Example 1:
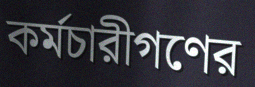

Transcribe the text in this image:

কর্মচারীগণের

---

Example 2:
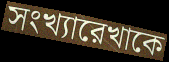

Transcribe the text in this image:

সংখ্যারেখাকে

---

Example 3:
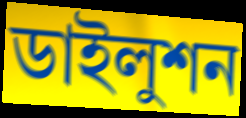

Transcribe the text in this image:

ডাইলুশন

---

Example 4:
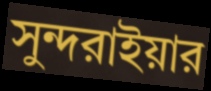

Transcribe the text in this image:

সুন্দরাইয়ার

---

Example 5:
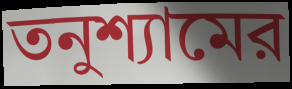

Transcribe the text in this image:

তনুশ্যামের